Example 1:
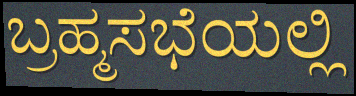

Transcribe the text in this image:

ಬ್ರಹ್ಮಸಭೆಯಲ್ಲಿ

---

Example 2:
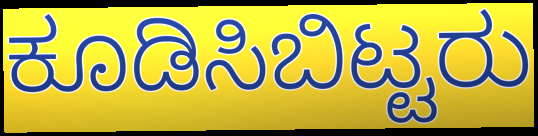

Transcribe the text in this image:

ಕೂಡಿಸಿಬಿಟ್ಟರು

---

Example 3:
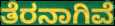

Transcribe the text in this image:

ತೆರನಾಗಿವೆ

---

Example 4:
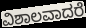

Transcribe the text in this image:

ವಿಶಾಲವಾದರೆ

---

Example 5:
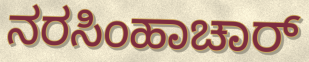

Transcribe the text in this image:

ನರಸಿಂಹಾಚಾರ್